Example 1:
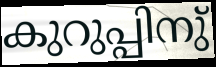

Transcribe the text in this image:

കുറുപ്പിനു്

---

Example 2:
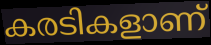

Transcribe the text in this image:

കരടികളാണ്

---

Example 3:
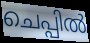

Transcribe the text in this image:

ചെപ്പിൽ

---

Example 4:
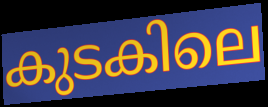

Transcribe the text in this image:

കുടകിലെ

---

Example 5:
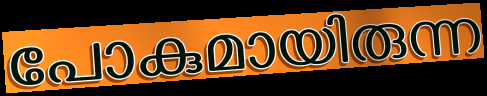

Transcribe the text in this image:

പോകുമായിരുന്ന